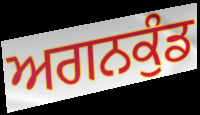
ਅਗਨਕੁੰਡ